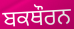
ਬਕਥੌਰਨ